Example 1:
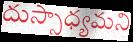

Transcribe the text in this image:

దుస్సాధ్యమని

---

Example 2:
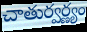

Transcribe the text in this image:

చాతుర్వర్ణ్యం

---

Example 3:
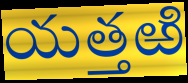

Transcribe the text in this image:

యత్తఱి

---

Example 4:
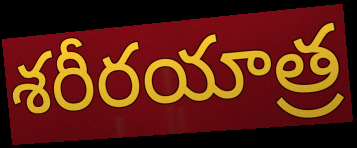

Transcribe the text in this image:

శరీరయాత్ర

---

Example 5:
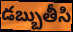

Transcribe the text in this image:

డబ్బుతీసి